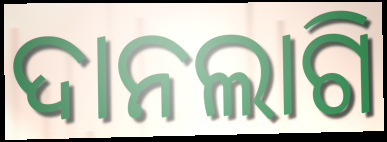
ଦାନଲାଗି